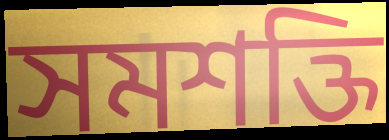
সমশক্তি